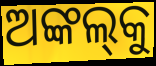
ଅଙ୍କଲ୍‌କୁ